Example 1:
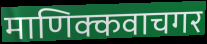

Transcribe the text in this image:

माणिक्कवाचगर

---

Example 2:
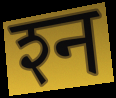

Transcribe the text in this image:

श्न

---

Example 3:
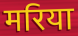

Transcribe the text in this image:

मरिया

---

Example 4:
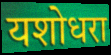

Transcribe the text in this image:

यशोधरा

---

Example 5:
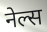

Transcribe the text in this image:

नेल्स